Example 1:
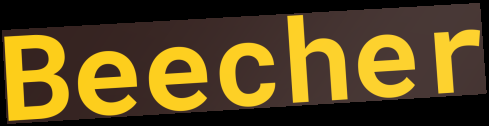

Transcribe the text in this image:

Beecher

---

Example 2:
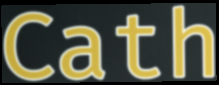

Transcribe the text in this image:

Cath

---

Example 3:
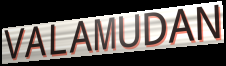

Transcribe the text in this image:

VALAMUDAN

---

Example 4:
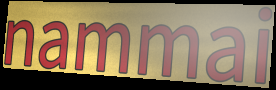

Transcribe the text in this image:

nammai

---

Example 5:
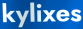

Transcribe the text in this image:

kylixes